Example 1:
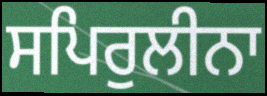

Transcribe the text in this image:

ਸਪਿਰੁਲੀਨਾ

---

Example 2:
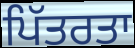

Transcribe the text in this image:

ਪਿੱਤਰਤਾ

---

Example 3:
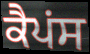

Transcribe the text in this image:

ਕੈਪਂਸ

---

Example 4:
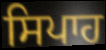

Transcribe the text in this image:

ਸਿਪਾਹ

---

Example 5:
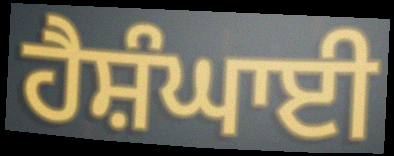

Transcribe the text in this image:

ਹੈਸ਼ੰਘਾਈ